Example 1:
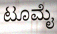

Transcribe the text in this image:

ಟೂಮೈ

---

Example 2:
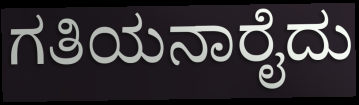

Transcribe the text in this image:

ಗತಿಯನಾರೈದು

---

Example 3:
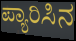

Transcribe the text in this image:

ಪ್ಯಾರಿಸಿನ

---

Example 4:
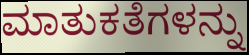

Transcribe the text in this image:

ಮಾತುಕತೆಗಳನ್ನು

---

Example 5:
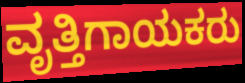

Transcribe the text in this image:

ವೃತ್ತಿಗಾಯಕರು